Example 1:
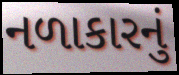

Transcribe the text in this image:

નળાકારનું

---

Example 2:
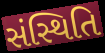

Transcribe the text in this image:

સંસ્થિતિ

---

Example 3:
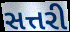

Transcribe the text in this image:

સત્તરી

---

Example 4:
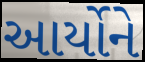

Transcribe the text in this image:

આર્યોને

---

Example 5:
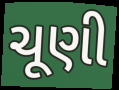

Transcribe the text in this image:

ચૂણી